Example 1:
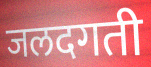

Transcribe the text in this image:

जलदगती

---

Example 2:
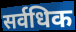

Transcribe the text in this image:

सर्वधिक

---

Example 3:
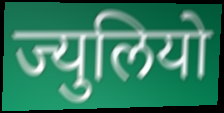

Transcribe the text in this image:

ज्युलियो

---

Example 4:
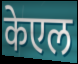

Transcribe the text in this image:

केएल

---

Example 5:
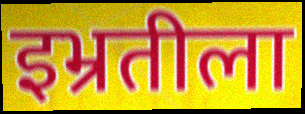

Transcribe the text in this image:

इभ्रतीला